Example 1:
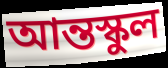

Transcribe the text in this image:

আন্তস্কুল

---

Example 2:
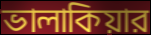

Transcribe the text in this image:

ভালাকিয়ার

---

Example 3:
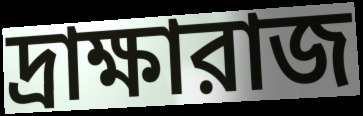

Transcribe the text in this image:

দ্রাক্ষারাজ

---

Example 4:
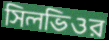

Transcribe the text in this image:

সিলভিওর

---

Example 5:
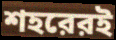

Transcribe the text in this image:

শহরেরই